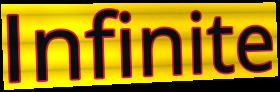
Infinite